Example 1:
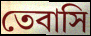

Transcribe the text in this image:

তেবাসি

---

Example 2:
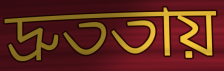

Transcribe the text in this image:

দ্রুততায়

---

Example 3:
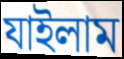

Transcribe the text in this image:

যাইলাম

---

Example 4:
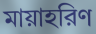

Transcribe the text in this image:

মায়াহরিণ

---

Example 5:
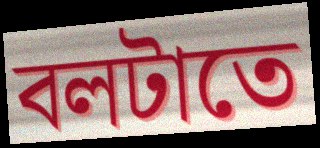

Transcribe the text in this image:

বলটাতে